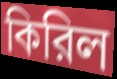
কিরিল